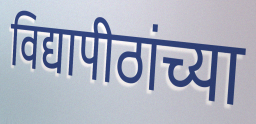
विद्यापीठांच्या